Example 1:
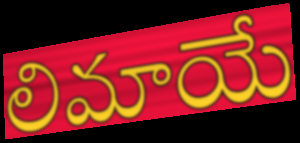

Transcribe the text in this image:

లిమాయే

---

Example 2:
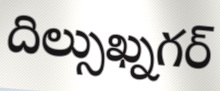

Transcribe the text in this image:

దిల్సుఖ్నగర్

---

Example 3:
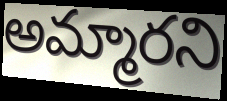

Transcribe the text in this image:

అమ్మారని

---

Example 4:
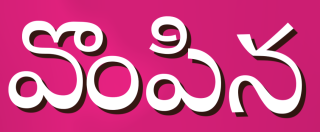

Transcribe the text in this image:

వొంపిన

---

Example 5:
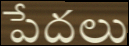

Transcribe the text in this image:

పేదలు